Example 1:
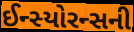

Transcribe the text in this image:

ઈન્સ્યોરન્સની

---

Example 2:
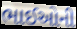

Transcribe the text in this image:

ભાઈઓની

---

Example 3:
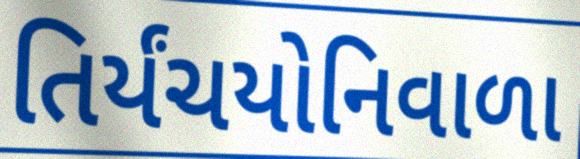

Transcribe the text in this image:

તિર્યંચયોનિવાળા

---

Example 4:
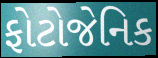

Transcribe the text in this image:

ફોટોજેનિક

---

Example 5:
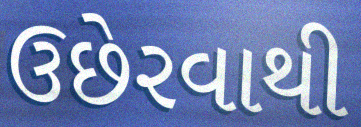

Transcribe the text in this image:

ઉછેરવાથી